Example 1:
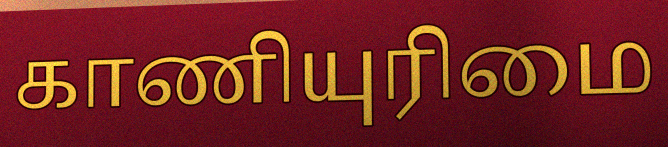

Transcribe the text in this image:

காணியுரிமை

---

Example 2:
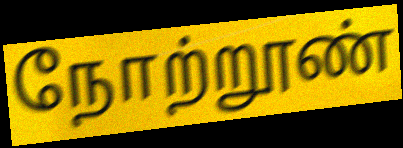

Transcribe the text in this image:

நோற்றூண்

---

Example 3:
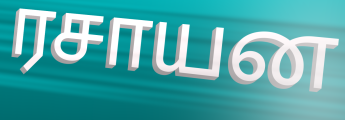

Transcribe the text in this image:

ரசாயன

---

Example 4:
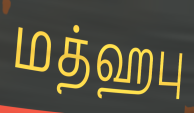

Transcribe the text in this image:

மத்ஹபு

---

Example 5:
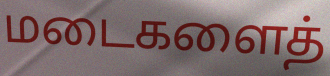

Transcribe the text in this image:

மடைகளைத்